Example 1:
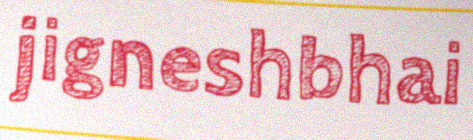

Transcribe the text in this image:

jigneshbhai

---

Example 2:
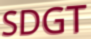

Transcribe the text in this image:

SDGT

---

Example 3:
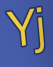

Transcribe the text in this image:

Yj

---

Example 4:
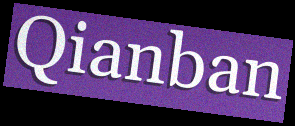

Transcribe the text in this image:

Qianban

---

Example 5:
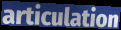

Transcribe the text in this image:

articulation